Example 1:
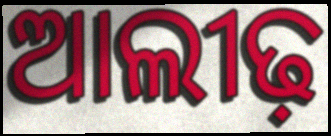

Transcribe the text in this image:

ଆଲୀଢ଼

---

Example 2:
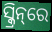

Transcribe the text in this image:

ସ୍କ୍ରିନ୍‌ରେ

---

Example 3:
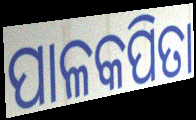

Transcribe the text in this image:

ପାଳକପିତା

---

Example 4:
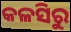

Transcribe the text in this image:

କଳସିରୁ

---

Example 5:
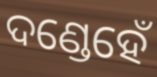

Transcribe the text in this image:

ଦଣ୍ଡେହେଁ